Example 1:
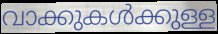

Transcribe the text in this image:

വാക്കുകൾക്കുള്ള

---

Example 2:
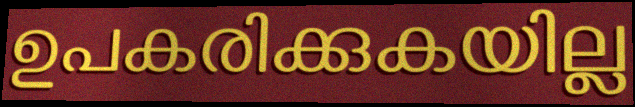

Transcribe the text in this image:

ഉപകരിക്കുകയില്ല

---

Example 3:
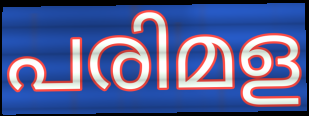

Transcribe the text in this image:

പരിമള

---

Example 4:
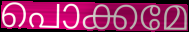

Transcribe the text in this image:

പൊക്കമേ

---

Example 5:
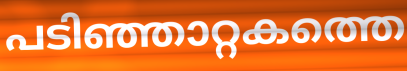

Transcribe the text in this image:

പടിഞ്ഞാറ്റകത്തെ